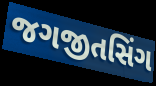
જગજીતસિંગ